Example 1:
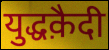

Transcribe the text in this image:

युद्धक़ैदी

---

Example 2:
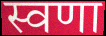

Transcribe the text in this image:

स्वणा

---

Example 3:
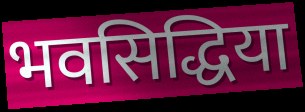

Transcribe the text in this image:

भवसिद्धिया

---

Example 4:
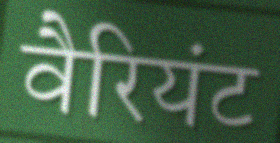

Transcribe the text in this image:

वैरियंट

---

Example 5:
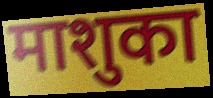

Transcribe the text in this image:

माशुका